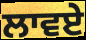
ਲਾਵਏ